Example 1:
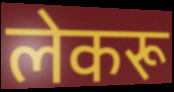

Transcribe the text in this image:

लेकरू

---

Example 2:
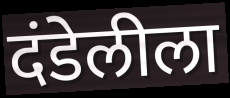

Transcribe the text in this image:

दंडेलीला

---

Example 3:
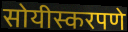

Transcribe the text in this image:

सोयीस्करपणे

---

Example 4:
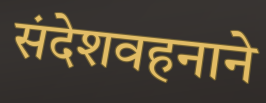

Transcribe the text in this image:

संदेशवहनाने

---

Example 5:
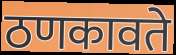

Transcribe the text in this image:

ठणकावते